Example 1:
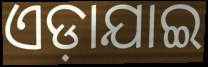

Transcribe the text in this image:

ଏଡ଼ାଯାଇ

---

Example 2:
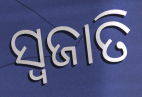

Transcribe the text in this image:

ସ୍ୱଜାତି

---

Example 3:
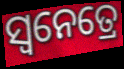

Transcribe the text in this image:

ସ୍ୱନେତ୍ରେ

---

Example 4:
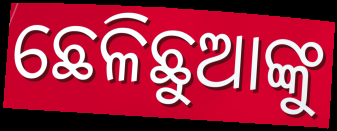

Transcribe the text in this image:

ଛେଳିଛୁଆଙ୍କୁ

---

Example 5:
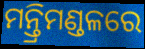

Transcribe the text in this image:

ମନ୍ତ୍ରିମଣ୍ଡଳରେ